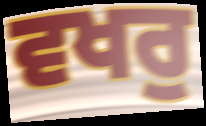
ਵਖਰੁ